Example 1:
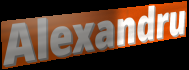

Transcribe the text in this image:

Alexandru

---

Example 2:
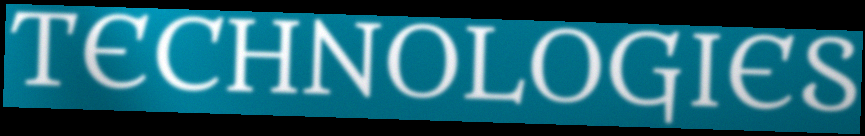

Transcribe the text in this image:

TECHNOLOGIES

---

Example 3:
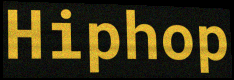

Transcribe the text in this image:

Hiphop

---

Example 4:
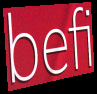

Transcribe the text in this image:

befi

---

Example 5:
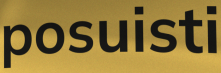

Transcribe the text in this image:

posuisti